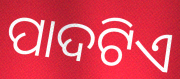
ପାଦଟିଏ